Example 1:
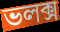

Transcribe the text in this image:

ভলক্স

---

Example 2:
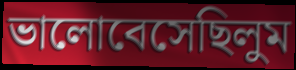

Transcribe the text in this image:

ভালোবেসেছিলুম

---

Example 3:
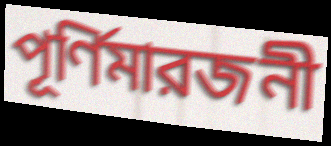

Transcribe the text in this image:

পূর্ণিমারজনী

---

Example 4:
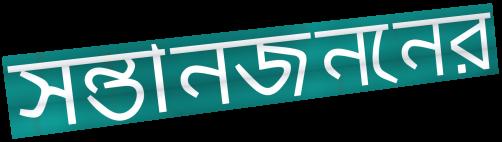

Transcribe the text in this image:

সন্তানজননের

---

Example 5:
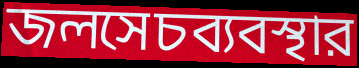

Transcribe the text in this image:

জলসেচব্যবস্থার